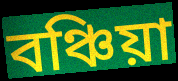
বঞ্চিয়া